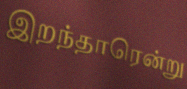
இறந்தாரென்று